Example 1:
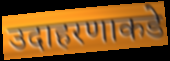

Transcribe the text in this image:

उदाहरणाकडे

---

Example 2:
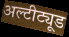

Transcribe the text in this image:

अल्टीट्यूड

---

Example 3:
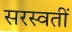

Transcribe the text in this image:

सरस्वतीं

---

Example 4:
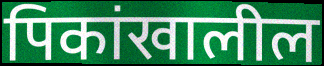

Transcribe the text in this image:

पिकांखालील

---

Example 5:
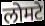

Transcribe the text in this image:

लोमटे